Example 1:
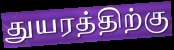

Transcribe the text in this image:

துயரத்திற்கு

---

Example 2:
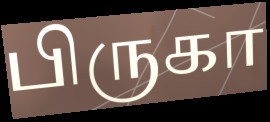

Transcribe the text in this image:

பிருகா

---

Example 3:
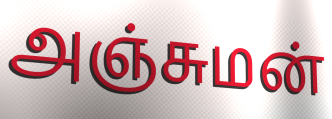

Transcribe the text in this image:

அஞ்சுமன்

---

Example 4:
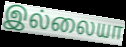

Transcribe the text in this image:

இல்லையா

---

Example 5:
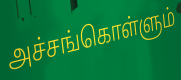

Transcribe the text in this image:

அச்சங்கொள்ளும்